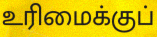
உரிமைக்குப்